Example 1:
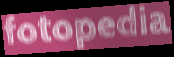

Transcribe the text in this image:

fotopedia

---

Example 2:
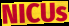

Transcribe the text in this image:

NICUs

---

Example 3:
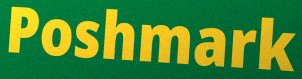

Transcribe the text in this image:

Poshmark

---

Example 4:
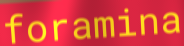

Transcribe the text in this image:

foramina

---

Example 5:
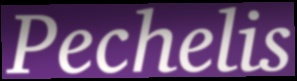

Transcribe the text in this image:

Pechelis